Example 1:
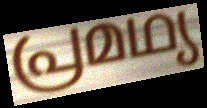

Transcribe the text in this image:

പ്രമഥ്യ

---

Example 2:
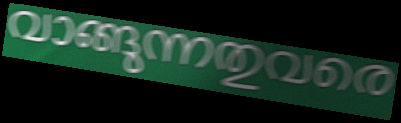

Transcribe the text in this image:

വാങ്ങുന്നതുവരെ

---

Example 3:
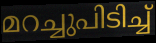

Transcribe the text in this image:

മറച്ചുപിടിച്ച്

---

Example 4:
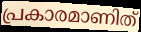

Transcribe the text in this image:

പ്രകാരമാണിത്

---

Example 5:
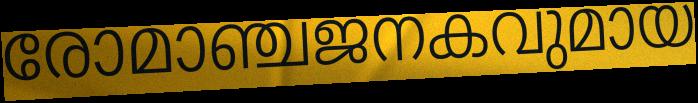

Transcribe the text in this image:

രോമാഞ്ചജനകവുമായ